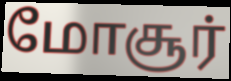
மோசூர்